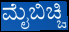
ಮೈಬಿಚ್ಚಿ